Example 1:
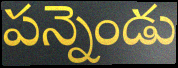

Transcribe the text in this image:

పన్నెండు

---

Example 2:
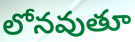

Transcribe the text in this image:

లోనవుతూ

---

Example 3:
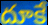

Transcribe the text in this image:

దూకే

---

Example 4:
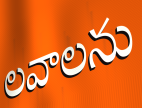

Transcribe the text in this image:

లవాలను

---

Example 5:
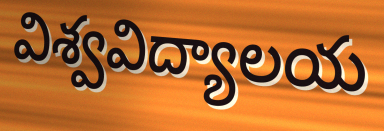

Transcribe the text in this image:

విశ్వవిద్యాలయ